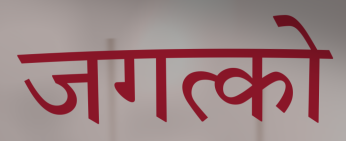
जगत्को